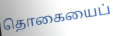
தொகையைப்